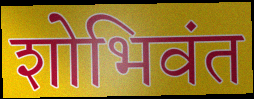
शोभिवंत